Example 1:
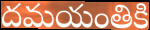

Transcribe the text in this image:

దమయంతికి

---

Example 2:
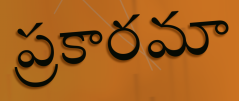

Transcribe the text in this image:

ప్రకారమా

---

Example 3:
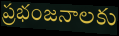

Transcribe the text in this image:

ప్రభంజనాలకు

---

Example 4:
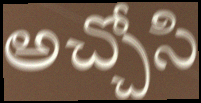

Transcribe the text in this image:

అచ్చోసి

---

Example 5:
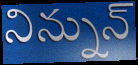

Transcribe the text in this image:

నిన్నున్